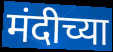
मंदीच्या